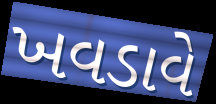
ખવડાવે